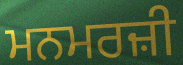
ਮਨਮਰਜ਼ੀ